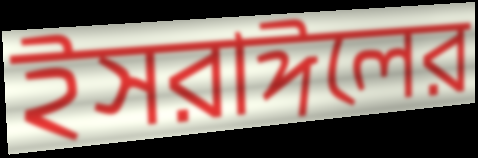
ইসরাঈলের